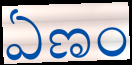
ఏణం